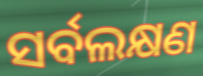
ସର୍ବଲକ୍ଷଣ